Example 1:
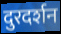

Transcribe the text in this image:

दुरदर्शन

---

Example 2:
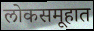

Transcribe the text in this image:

लोकसमूहात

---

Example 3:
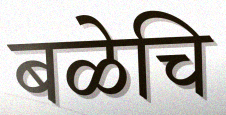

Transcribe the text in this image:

बळेचि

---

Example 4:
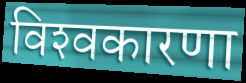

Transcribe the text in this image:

विश्वकारणा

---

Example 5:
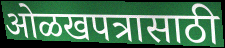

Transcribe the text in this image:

ओळखपत्रासाठी